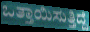
ಒತ್ತಾಯಿಸುತ್ತಿದ್ದೆ